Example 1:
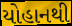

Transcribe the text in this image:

યોહાનથી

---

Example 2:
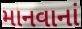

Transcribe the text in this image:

માનવાનાં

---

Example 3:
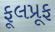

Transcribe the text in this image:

ફૂલપ્રૂફ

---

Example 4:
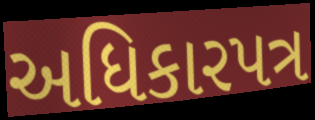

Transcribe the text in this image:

અધિકારપત્ર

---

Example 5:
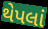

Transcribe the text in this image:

થેપલાં